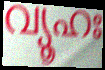
വ്യൂഹഃ